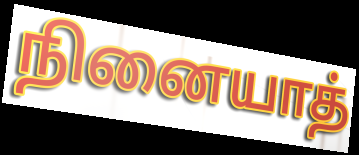
நினையாத்